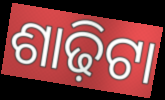
ଶାଢ଼ିଟା